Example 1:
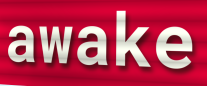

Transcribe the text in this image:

awake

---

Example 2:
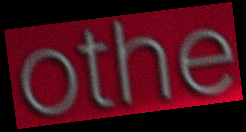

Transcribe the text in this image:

othe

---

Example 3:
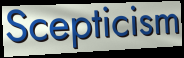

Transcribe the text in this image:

Scepticism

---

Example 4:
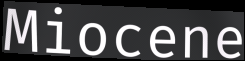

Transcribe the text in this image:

Miocene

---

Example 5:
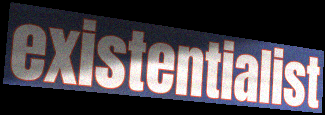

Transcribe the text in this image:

existentialist